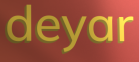
deyar